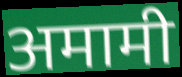
अमामी